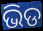
ଭିଡ